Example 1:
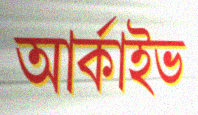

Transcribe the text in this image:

আৰ্কাইভ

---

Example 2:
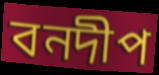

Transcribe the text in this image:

বনদীপ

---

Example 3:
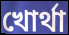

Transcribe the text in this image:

খোৰ্থা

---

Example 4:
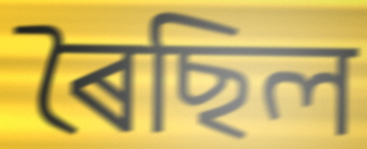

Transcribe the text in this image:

ৰৈছিল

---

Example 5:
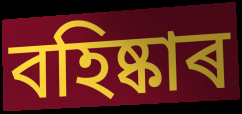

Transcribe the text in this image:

বহিষ্কাৰ